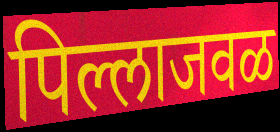
पिल्लाजवळ